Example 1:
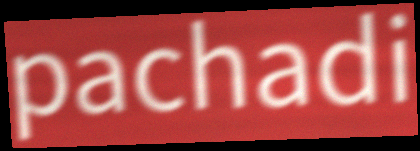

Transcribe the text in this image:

pachadi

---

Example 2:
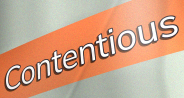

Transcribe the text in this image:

Contentious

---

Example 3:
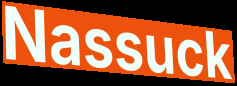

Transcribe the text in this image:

Nassuck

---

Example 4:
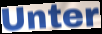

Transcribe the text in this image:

Unter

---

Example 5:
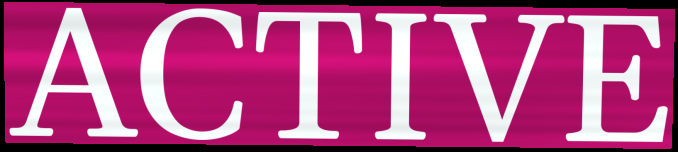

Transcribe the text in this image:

ACTIVE